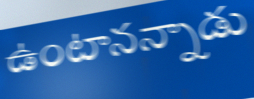
ఉంటానన్నాడు